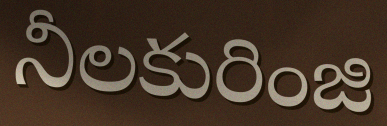
నీలకురింజి